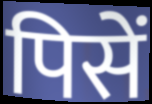
पिसें